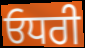
ਓਧਰੀ